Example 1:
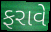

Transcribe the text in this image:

ફરાવે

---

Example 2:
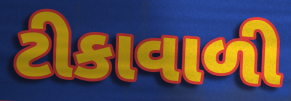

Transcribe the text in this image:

ટીકાવાળી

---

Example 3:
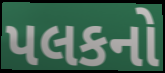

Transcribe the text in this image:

પલકનો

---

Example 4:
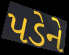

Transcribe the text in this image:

પડેને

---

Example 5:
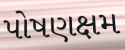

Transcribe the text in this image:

પોષણક્ષમ